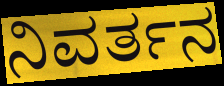
ನಿವರ್ತನ